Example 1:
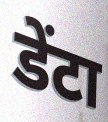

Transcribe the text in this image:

डेंटा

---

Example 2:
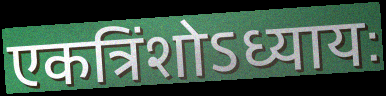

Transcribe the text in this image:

एकत्रिंशोऽध्यायः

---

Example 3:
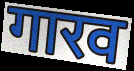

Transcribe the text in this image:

गारव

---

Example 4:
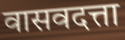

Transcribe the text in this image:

वासवदत्ता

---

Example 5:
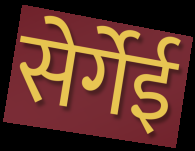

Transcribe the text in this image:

सेर्गेई